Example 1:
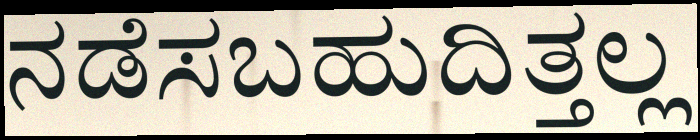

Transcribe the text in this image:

ನಡೆಸಬಹುದಿತ್ತಲ್ಲ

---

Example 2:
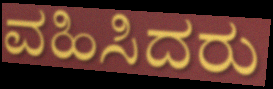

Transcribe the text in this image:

ವಹಿಸಿದರು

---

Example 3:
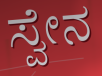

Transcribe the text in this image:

ಸ್ವೇನ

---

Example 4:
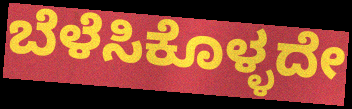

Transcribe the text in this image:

ಬೆಳೆಸಿಕೊಳ್ಳದೇ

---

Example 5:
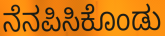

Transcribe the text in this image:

ನೆನಪಿಸಿಕೊಂಡು